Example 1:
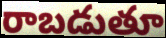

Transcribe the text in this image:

రాబడుతూ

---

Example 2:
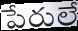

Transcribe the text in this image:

పేరులే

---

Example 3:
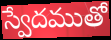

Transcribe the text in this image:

స్వేదముతో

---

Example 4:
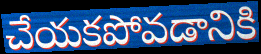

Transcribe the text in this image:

చేయకపోవడానికి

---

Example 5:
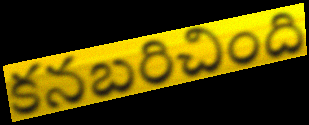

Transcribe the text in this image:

కనబరిచింది